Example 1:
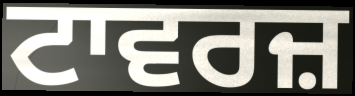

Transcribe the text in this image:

ਟਾਵਰਜ਼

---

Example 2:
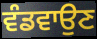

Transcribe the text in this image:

ਵੰਡਵਾਉਣ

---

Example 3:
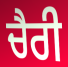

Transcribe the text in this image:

ਚੈਰੀ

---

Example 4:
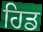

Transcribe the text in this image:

ਹਿਡ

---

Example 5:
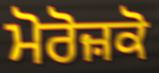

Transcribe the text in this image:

ਮੋਰੋਜ਼ਕੋ